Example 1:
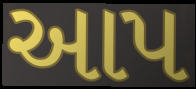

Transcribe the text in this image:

આપ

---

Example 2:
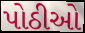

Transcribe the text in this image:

પોઠીઓ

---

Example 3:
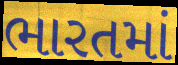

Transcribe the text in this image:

ભારતમાં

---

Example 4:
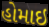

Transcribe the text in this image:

હોમાઇ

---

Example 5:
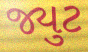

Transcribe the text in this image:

જ્યુટ